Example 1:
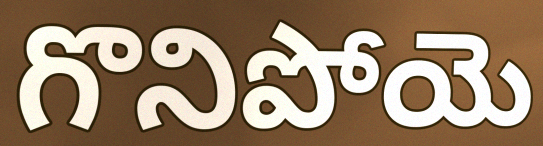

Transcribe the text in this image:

గొనిపోయె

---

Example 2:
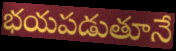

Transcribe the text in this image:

భయపడుతూనే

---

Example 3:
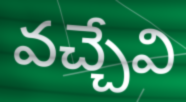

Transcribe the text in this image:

వచ్చేవి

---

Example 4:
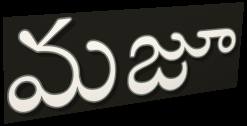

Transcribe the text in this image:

మజూ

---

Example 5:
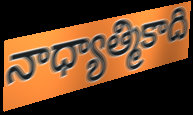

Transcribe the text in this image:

నాధ్యాత్మికాది